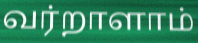
வர்றாளாம்